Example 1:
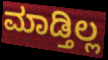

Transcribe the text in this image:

ಮಾಡ್ತಿಲ್ಲ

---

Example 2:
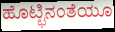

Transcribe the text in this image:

ಹೊಟ್ಟಿನಂತೆಯೂ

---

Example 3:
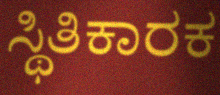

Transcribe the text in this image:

ಸ್ಥಿತಿಕಾರಕ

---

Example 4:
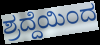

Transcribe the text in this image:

ಶ್ರದ್ದೆಯಿಂದ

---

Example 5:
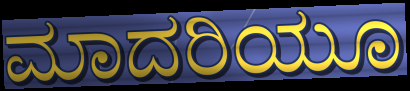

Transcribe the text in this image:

ಮಾದರಿಯೂ